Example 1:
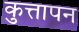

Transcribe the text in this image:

कुत्तापन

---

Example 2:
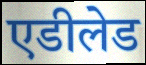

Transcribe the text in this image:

एडीलेड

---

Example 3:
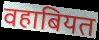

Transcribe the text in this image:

वहाबियत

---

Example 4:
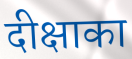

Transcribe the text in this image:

दीक्षाका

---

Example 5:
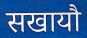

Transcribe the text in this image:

सखायौ